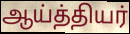
ஆய்த்தியர்